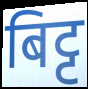
बिट्ट